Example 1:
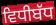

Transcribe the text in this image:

ਵਿਧੀਬੱਧ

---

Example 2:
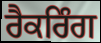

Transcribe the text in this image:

ਰੈਕਰਿੰਗ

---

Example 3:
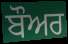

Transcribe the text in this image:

ਬੌਅਰ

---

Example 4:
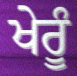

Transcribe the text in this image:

ਖੇਰੂੰ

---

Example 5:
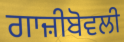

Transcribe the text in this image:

ਗਾਜ਼ੀਬੋਵਲੀ